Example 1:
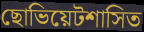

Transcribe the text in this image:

ছোভিয়েটশাসিত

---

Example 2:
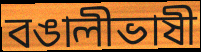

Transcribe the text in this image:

বঙালীভাষী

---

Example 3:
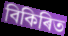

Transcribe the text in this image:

বিকিৰিত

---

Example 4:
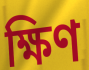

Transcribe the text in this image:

ক্ষিণ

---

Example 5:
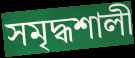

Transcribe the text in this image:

সমৃদ্ধশালী